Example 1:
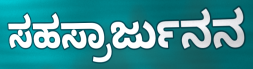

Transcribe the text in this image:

ಸಹಸ್ರಾರ್ಜುನನ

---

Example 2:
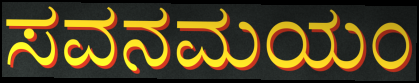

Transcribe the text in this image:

ಸವನಮಯಂ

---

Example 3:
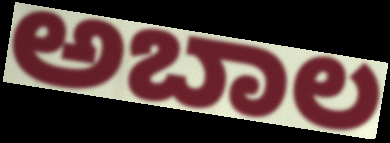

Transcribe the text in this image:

ಅಬಾಲ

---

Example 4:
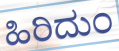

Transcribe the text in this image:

ಹಿರಿದುಂ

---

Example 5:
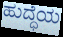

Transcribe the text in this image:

ಹುದ್ಧೆಯ